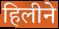
हिलीने